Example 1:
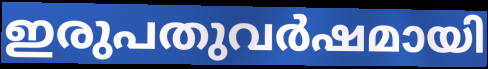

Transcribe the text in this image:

ഇരുപതുവർഷമായി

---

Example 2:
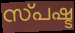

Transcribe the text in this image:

സ്‌പഷ്ട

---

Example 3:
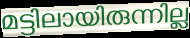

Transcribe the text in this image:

മട്ടിലായിരുന്നില്ല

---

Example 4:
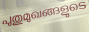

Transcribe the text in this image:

പുതുമുഖങ്ങളുടെ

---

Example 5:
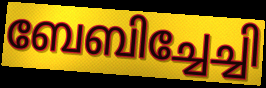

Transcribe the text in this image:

ബേബിച്ചേച്ചി